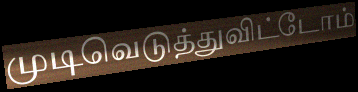
முடிவெடுத்துவிட்டோம்